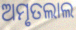
ଅମୃତଲାଲ